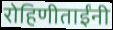
रोहिणीताईंनी